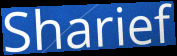
Sharief